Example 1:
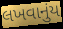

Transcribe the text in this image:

લખવાનુંય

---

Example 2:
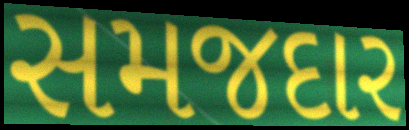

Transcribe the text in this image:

સમજદાર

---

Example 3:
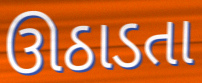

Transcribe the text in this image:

ઊઠાડતા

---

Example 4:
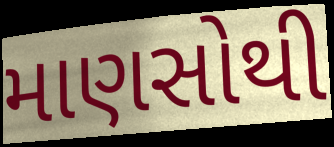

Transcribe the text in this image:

માણસોથી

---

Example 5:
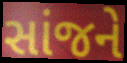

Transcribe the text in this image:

સાંજને